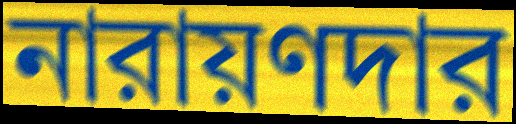
নারায়ণদার